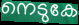
നെടുകേ